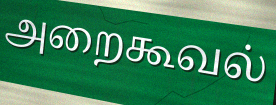
அறைகூவல்